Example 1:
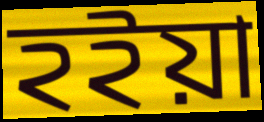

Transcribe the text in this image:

হইয়া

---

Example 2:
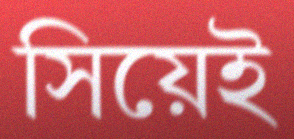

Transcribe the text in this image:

সিয়েই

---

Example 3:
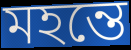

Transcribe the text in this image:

মহন্তে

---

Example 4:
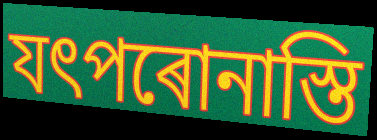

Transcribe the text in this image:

যৎপৰোনাস্তি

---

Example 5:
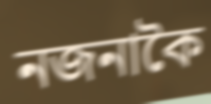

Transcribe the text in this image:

নজনাকৈ